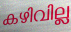
കഴിവില്ല